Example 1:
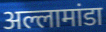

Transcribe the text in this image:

अल्लामांडा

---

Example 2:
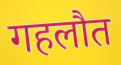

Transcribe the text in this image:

गहलौत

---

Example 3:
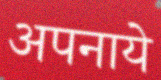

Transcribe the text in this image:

अपनाये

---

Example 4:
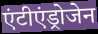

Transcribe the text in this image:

एंटीएंड्रोजेन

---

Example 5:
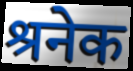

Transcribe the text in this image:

श्रनेक